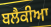
ਬਲੈਕੀਆ